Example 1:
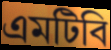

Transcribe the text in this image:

এমটিবি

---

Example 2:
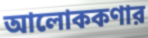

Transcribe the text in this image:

আলোককণার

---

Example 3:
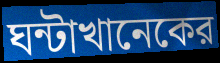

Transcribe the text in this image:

ঘন্টাখানেকের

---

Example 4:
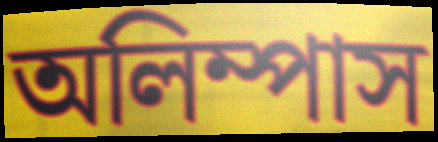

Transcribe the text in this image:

অলিম্পাস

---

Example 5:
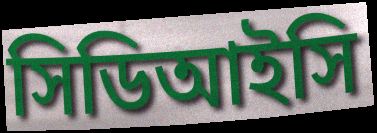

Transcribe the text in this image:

সিডিআইসি